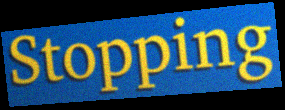
Stopping